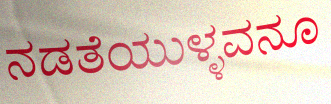
ನಡತೆಯುಳ್ಳವನೂ